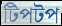
টিপটপ